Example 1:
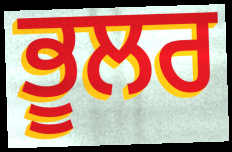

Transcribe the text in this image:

ਭੂਲਰ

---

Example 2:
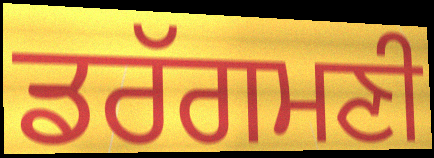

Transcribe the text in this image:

ਡਰੱਗਮਣੀ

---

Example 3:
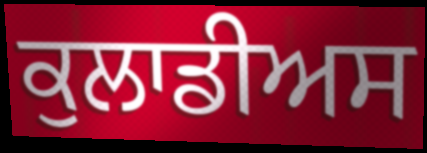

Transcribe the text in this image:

ਕੁਲਾਡੀਅਸ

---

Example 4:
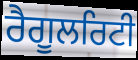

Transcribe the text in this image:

ਰੈਗੂਲਰਿਟੀ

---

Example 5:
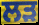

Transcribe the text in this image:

ਲੜ